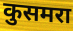
कुसमरा